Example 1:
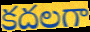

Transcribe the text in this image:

కదలగా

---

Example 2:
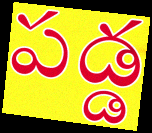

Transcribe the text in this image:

పడ్డ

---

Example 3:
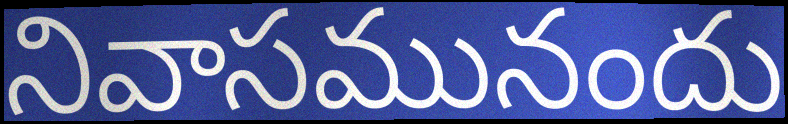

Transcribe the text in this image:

నివాసమునందు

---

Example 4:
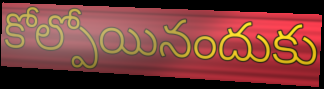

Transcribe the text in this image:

కోల్పోయినందుకు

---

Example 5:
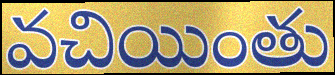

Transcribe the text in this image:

వచియింతు